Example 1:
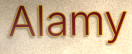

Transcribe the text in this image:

Alamy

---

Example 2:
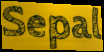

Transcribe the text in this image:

Sepal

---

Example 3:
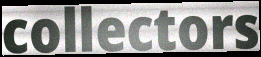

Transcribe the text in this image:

collectors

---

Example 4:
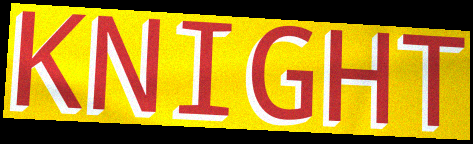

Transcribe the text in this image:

KNIGHT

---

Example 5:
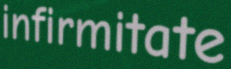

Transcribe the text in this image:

infirmitate